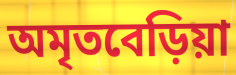
অমৃতবেড়িয়া